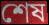
শেষ